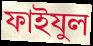
ফাইযুল